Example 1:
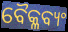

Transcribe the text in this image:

ବୈକ୍ଳବ୍ୟଂ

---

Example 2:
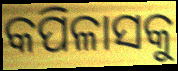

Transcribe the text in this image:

କପିଳାସକୁ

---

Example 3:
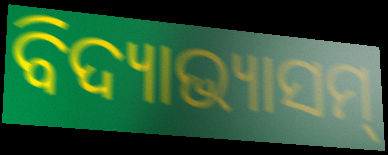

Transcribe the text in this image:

ବିଦ୍ୟାଭ୍ୟାସମ୍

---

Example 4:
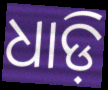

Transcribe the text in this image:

ଧାଡ଼ି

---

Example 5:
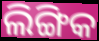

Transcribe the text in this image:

ଲିଙ୍ଗିକ